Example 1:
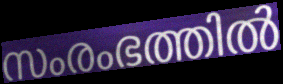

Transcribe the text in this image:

സംരംഭത്തിൽ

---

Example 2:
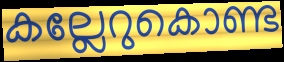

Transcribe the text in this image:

കല്ലേറുകൊണ്ട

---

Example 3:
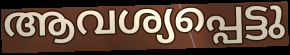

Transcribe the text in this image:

ആവശ്യപ്പെട്ടു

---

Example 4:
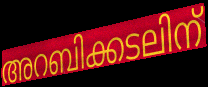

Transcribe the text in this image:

അറബിക്കടലിന്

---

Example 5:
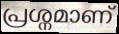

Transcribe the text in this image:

പ്രശ്നമാണ്